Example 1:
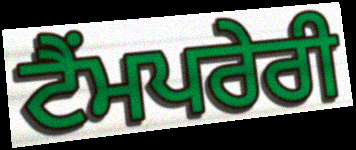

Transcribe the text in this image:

ਟੈਂਮਪਰੇਰੀ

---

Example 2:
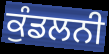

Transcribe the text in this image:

ਕੁੰਡਲਨੀ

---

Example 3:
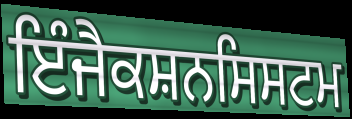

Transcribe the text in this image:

ਇੰਜੈਕਸ਼ਨਸਿਸਟਮ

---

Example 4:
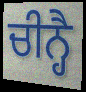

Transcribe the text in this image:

ਚੀਨ੍ਹ੍ਹੈ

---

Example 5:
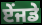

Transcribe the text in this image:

ਏਂਜਡੇ